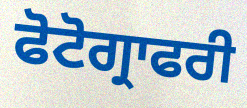
ਫੋਟੋਗ੍ਰਾਫਰੀ